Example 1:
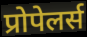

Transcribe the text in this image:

प्रोपेलर्स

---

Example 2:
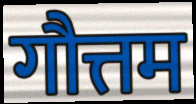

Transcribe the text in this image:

गौत्तम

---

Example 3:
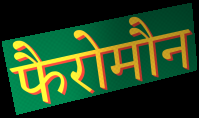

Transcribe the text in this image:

फैरोमौन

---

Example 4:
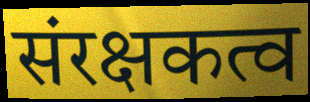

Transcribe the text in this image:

संरक्षकत्व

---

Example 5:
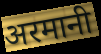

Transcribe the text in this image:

अरमानी